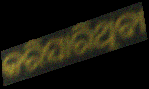
କରିସାରିଥିବା